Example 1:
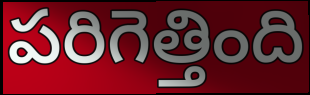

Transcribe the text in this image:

పరిగెత్తింది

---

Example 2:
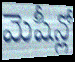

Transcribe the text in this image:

మెషీన్లో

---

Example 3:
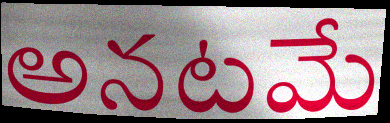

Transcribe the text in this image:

అనటమే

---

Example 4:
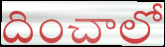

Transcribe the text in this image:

దించాలో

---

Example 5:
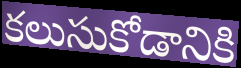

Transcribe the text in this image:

కలుసుకోడానికి